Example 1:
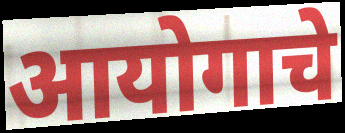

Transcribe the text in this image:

आयोगाचे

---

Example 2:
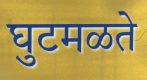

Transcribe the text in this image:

घुटमळते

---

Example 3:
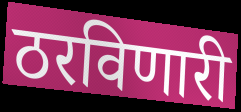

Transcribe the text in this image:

ठरविणारी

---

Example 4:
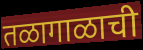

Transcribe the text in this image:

तळागाळाची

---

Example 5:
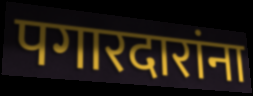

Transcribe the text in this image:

पगारदारांना